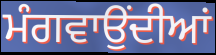
ਮੰਗਵਾਉਂਦੀਆਂ